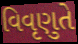
વિવૃણુતે